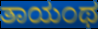
ತಾಯಂಥ